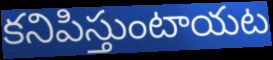
కనిపిస్తుంటాయట